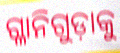
ଗ୍ଳାନିଗୁଡ଼ାକୁ